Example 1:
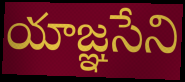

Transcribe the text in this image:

యాజ్ఞసేని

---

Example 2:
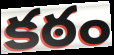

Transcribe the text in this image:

కఠం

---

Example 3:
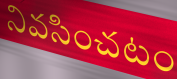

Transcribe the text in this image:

నివసించటం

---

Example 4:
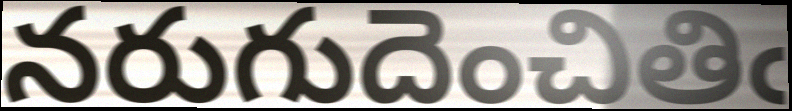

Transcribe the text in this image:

నరుగుదెంచితిఁ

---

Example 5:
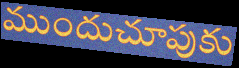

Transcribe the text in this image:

ముందుచూపుకు